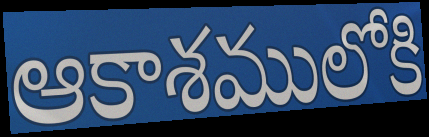
ఆకాశములోకి